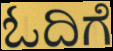
ಓದಿಗೆ